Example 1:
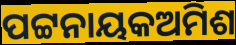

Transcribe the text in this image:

ପଟ୍ଟନାୟକଅମିଶ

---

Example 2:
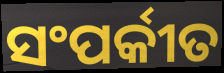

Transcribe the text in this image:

ସଂପର୍କୀତ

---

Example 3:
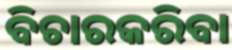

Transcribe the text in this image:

ବିଚାରକରିବା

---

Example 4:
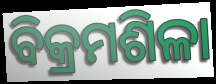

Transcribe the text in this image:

ବିକ୍ରମଶିଳା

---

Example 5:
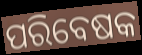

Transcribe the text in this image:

ପରିବେଷକ